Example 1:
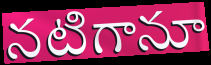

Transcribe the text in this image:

నటిగానూ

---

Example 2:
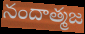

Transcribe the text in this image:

నందాత్మజ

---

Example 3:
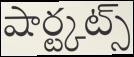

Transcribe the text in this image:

షార్ట్కట్స్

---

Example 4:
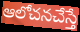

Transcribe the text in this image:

ఆలోచనచేస్తే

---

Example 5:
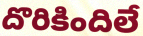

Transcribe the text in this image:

దొరికిందిలే